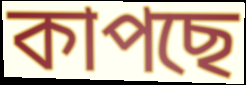
কাপছে